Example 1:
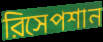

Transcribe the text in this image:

রিসেপশান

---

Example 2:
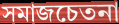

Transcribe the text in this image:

সমাজচেতনা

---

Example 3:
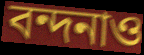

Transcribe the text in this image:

বন্দনাও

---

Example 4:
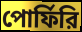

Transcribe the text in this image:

পোর্ফিরি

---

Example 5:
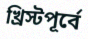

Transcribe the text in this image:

খ্রিস্টপূর্বে